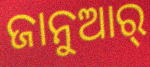
ଜାନୁଆର୍